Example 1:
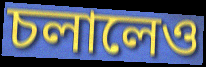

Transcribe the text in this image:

চলালেও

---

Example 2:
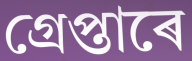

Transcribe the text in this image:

গ্ৰেপ্তাৰে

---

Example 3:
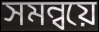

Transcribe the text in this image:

সমন্বয়ে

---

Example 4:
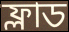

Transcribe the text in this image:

ফ্লাড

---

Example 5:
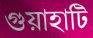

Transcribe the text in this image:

গুয়াহাটি